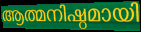
ആത്മനിഷ്ഠമായി